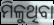
ମିଳୁଥିବା